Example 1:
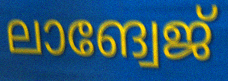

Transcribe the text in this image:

ലാങ്വേജ്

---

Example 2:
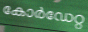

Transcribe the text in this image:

കോർഡേറ്റ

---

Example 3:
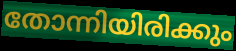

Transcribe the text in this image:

തോന്നിയിരിക്കും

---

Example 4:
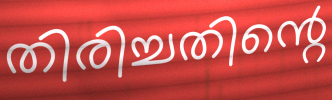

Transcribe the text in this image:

തിരിച്ചതിന്റെ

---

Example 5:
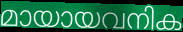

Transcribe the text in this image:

മായായവനിക